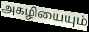
அகழியையும்